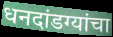
धनदांडग्यांचा